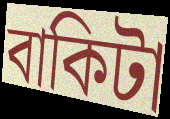
বাকিটা